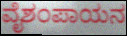
ವೈಶಂಪಾಯನ